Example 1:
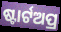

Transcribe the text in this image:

ଷ୍ଟାର୍ଟଅପ୍ର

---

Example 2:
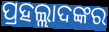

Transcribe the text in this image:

ପ୍ରହଲ୍ଲାଦଙ୍କର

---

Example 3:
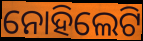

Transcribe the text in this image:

ନୋହିଲେଟି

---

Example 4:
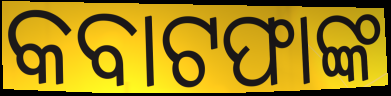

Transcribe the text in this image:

କବାଟଫାଙ୍କ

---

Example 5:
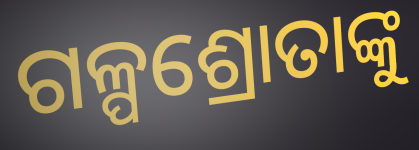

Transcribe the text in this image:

ଗଳ୍ପଶ୍ରୋତାଙ୍କୁ